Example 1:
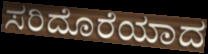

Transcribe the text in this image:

ಸರಿದೊರೆಯಾದ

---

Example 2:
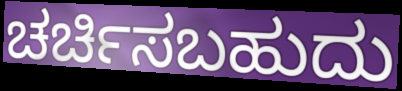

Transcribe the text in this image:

ಚರ್ಚಿಸಬಹುದು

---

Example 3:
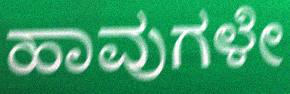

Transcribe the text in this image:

ಹಾವುಗಳೇ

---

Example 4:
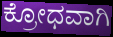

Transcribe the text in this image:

ಕ್ರೋಧವಾಗಿ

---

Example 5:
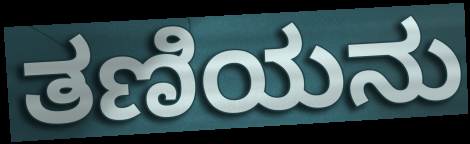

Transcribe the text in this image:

ತಣಿಯನು